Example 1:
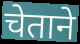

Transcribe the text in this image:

चेताने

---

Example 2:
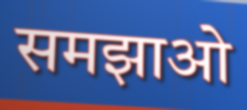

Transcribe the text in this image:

समझाओ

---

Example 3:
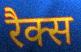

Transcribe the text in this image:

रैक्स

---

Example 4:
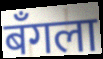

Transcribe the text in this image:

बँगला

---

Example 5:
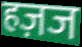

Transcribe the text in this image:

हज़ज